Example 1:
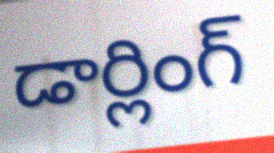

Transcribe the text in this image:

డార్లింగ్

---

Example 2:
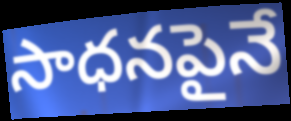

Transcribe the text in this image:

సాధనపైనే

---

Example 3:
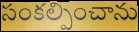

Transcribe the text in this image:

సంకల్పించాను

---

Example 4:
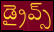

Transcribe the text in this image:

డ్రైవ్స్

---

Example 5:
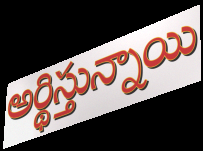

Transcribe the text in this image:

అర్థిస్తున్నాయి